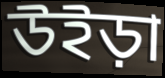
উইড়া